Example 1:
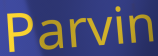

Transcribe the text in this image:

Parvin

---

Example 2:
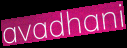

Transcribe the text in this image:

avadhani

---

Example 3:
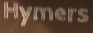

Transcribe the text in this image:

Hymers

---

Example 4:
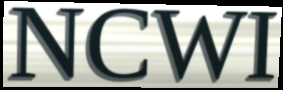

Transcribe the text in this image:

NCWI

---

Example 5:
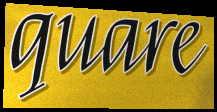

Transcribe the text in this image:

quare